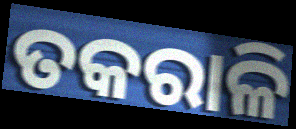
ତକରାଳି